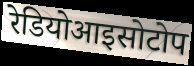
रेडियोआइसोटोप